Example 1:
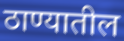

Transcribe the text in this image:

ठाण्यातील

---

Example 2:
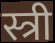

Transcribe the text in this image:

स्त्री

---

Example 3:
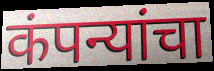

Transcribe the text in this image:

कंपन्यांचा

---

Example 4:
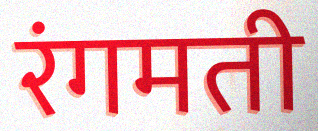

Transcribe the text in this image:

रंगमती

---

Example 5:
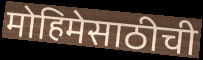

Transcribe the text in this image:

मोहिमेसाठीची